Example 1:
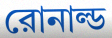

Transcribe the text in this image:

রোনাল্ড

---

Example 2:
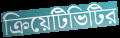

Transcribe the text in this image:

ক্রিয়েটিভিটির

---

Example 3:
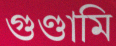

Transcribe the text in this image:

গুণ্ডামি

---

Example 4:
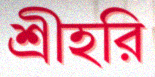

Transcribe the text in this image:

শ্রীহরি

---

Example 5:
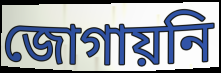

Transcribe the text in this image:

জোগায়নি